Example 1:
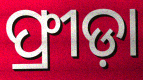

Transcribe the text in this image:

ଫ୍ରୀଡ଼ା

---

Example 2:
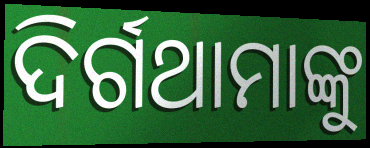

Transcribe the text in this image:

ଦିର୍ଗଥାମାଙ୍କୁ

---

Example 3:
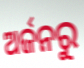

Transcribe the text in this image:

ଅର୍ଜନରୁ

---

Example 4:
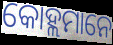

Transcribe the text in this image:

କୋହ୍ଲମାନେ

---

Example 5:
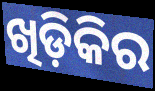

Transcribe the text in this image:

ଖିଡ଼ିକିର